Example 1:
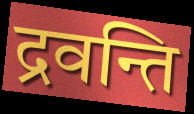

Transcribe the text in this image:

द्रवन्ति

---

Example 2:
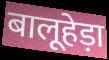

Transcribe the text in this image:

बालूहेड़ा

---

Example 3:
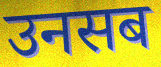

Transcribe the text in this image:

उनसब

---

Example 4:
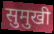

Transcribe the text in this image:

सुमुखी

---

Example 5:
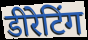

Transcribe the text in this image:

डीरेटिंग